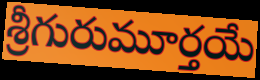
శ్రీగురుమూర్తయే